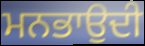
ਮਨਭਾਉਦੀ